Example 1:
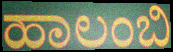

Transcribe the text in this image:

ಹಾಲಂಬಿ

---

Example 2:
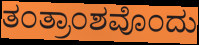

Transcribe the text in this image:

ತಂತ್ರಾಂಶವೊಂದು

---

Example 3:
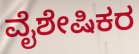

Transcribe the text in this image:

ವೈಶೇಷಿಕರ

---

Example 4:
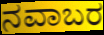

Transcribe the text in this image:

ನವಾಬರ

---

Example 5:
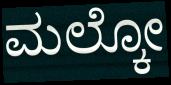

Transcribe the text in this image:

ಮಲ್ಕೋ